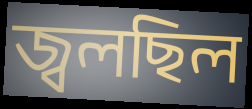
জ্বলছিল